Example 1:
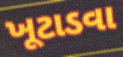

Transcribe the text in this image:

ખૂટાડવા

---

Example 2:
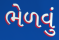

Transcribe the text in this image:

ભેળવું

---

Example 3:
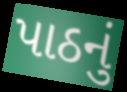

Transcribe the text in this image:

પાઠનું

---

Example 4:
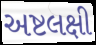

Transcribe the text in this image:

અષ્ટલક્ષી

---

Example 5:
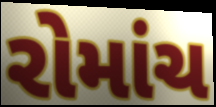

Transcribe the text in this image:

રોમાંચ